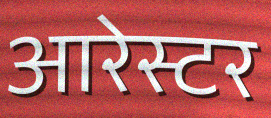
आरेस्टर